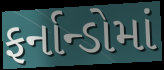
ફર્નાન્ડોમાં